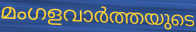
മംഗളവാർത്തയുടെ